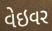
વેઇવર